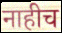
नाहीच